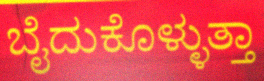
ಬೈದುಕೊಳ್ಳುತ್ತಾ